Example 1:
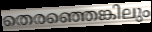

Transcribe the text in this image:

തെരഞ്ഞെങ്കിലും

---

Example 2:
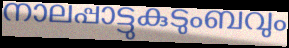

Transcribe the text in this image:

നാലപ്പാട്ടുകുടുംബവും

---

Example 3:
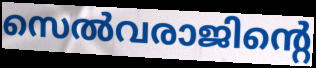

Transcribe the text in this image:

സെൽവരാജിന്റെ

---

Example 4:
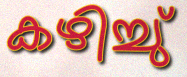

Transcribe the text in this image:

കഴിച്ചു്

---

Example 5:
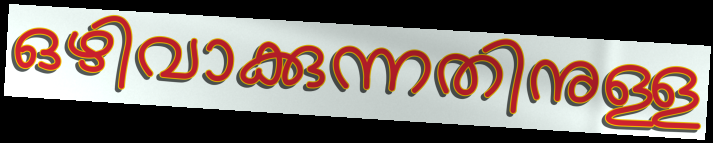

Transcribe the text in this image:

ഒഴിവാക്കുന്നതിനുള്ള